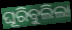
ଘୂରିବୁଲିଲା